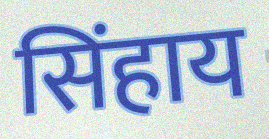
सिंहाय